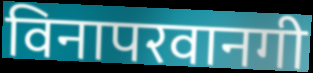
विनापरवानगी